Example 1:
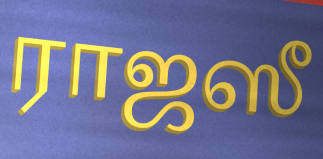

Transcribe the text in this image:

ராஜஸீ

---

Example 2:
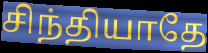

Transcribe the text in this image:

சிந்தியாதே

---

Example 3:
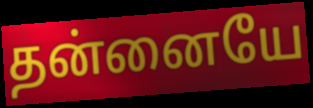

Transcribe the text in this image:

தன்னையே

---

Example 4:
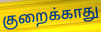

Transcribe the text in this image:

குறைக்காது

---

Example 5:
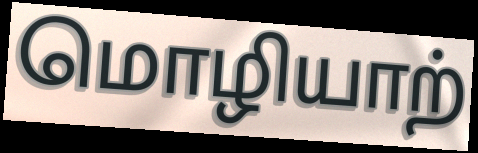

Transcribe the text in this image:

மொழியாற்